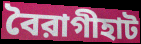
বৈরাগীহাট